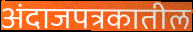
अंदाजपत्रकातील